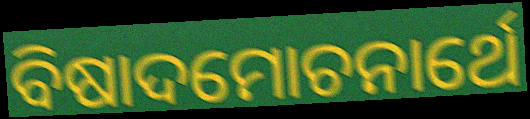
ବିଷାଦମୋଚନାର୍ଥେ